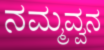
ನಮ್ಮವ್ವನ